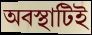
অবস্থাটিই